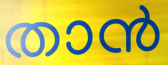
താൻ